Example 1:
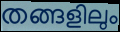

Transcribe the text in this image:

തങ്ങളിലും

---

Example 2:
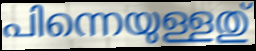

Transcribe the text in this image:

പിന്നെയുള്ളതു്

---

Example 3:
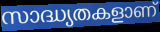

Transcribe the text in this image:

സാദ്ധ്യതകളാണ്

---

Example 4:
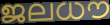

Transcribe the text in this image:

ജലധൗ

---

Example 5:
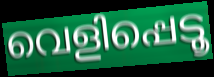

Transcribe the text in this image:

വെളിപ്പെടൂ